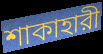
শাকাহারী